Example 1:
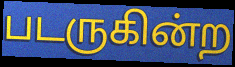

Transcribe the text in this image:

படருகின்ற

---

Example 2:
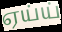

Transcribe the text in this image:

ஏய்ய்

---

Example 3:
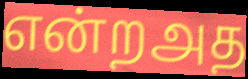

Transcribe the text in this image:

என்றஅத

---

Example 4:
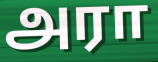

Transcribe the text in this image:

அரா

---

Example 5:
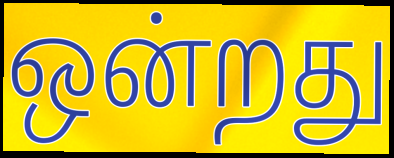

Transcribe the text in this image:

ஒன்றது